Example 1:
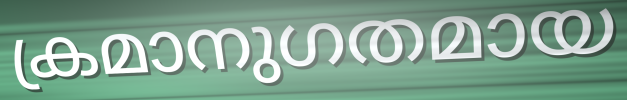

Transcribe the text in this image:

ക്രമാനുഗതമായ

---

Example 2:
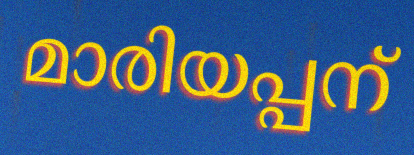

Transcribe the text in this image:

മാരിയപ്പന്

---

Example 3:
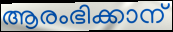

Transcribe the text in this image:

ആരംഭിക്കാന്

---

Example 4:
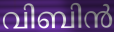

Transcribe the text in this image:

വിബിൻ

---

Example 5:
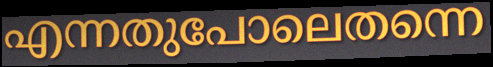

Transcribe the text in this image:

എന്നതുപോലെതന്നെ